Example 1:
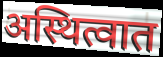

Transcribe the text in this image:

अस्थित्वात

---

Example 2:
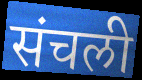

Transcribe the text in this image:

संचली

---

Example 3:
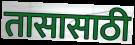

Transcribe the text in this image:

तासासाठी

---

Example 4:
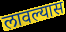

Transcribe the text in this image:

लावल्यास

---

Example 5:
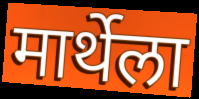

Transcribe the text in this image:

मार्थेला